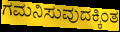
ಗಮನಿಸುವುದಕ್ಕಿಂತ